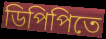
ডিপিপিতে